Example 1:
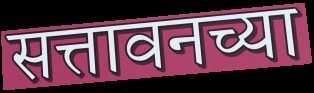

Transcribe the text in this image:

सत्तावनच्या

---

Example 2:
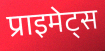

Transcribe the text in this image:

प्राइमेट्स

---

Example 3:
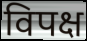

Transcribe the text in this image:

विपक्ष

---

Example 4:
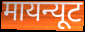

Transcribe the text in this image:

मायन्यूट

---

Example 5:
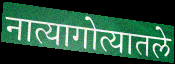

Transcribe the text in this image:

नात्यागोत्यातले